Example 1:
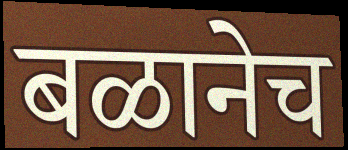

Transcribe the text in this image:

बळानेच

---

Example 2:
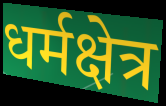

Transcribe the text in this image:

धर्मक्षेत्र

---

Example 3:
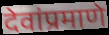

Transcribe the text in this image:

देवांप्रमाणे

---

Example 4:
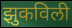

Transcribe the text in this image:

झुकविली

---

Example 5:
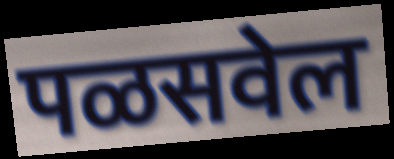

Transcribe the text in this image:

पळसवेल